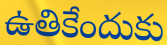
ఉతికేందుకు